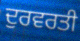
ਦੁਰਵਰਤੀ